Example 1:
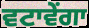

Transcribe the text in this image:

ਵਟਾਵੇਂਗਾ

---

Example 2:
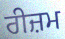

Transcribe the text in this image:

ਰੀਜ਼ਮ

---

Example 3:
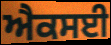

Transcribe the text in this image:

ਐਕਸਈ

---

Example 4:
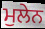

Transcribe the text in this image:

ਮੁਲੇਨ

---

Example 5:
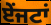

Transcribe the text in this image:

ਏਂਜਟਾਂ